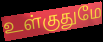
உள்குதுமே